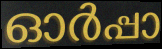
ഓർപ്പാ